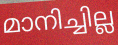
മാനിച്ചില്ല